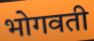
भोगवती